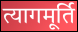
त्यागमूर्ति